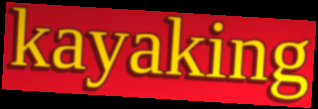
kayaking